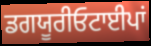
ਡਗਯੂਰੀਓਟਾਈਪਾਂ